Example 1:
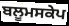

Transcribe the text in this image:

ਬਲੂਮਸਕੇਪ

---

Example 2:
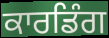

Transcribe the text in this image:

ਕਾਰਡਿੰਗ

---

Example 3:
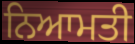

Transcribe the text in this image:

ਨਿਆਮਤੀ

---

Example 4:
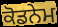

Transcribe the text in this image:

ਕੋਡਨੇਮ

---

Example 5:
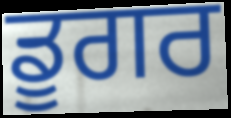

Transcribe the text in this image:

ਡੂਗਰ